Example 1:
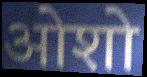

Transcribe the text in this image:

ओशो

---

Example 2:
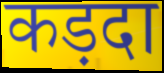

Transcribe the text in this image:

कड़दा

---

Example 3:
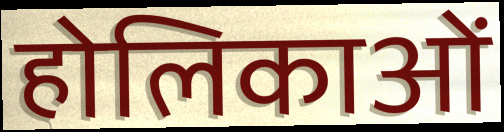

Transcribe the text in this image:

होलिकाओं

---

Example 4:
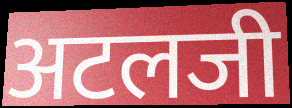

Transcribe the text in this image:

अटलजी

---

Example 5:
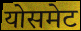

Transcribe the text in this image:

योसमेट